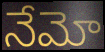
నేమో